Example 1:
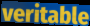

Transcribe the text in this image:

veritable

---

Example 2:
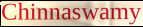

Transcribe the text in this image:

Chinnaswamy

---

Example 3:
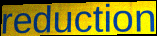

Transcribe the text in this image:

reduction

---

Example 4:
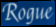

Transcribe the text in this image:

Rogue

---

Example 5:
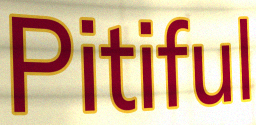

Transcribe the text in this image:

Pitiful